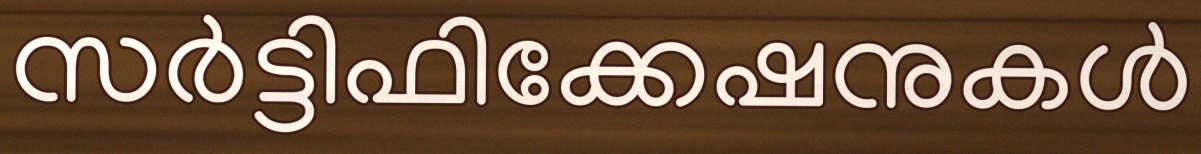
സർട്ടിഫിക്കേഷനുകൾ